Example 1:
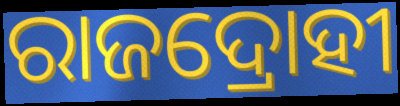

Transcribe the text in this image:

ରାଜଦ୍ରୋହୀ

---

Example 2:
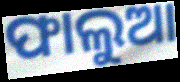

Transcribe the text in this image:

ଫାଲୁଆ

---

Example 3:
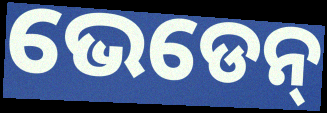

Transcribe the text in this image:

ଭେଡେନ୍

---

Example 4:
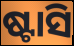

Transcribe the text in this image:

ଷ୍ଟାସି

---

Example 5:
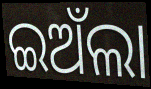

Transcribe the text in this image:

ଇଅଁଲା